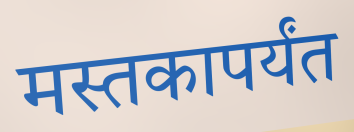
मस्तकापर्यंत